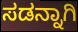
ಸಡನ್ನಾಗಿ